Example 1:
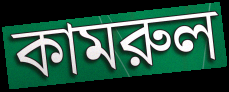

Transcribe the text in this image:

কামরুল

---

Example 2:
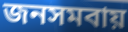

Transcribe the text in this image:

জনসমবায়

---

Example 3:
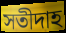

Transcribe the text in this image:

সতীদাহ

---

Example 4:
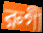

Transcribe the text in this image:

রুগী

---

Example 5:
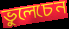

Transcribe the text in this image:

ভুলেচেন